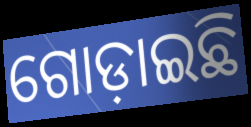
ଗୋଡ଼ାଇଛି